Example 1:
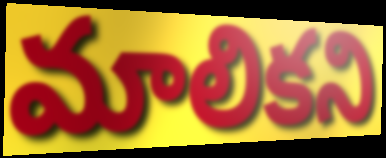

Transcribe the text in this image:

మాలికని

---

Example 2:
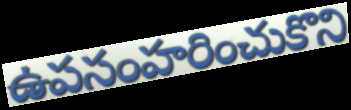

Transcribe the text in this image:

ఉపసంహరించుకొని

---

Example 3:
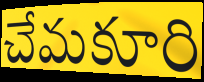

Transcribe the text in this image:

చేమకూరి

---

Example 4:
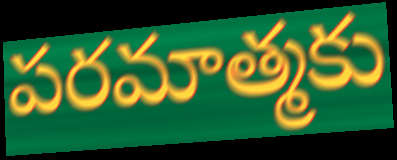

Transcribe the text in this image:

పరమాత్మకు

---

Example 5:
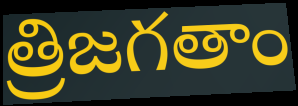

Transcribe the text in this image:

త్రిజగతాం